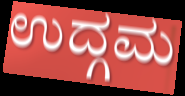
ಉದ್ಗಮ